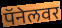
पॅनेलवर